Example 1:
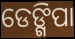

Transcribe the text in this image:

ଡେଙ୍ଗିପା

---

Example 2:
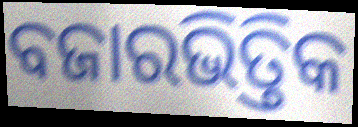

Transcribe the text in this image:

ବଜାରଭିତ୍ତିକ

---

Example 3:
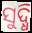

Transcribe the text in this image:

ସୁଦ୍ଧି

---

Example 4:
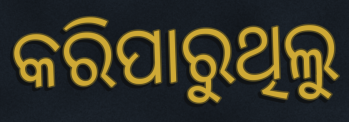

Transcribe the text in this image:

କରିପାରୁଥିଲୁ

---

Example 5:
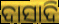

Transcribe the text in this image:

ଦାସାଦି